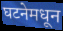
घटनेमधून